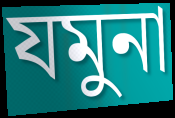
যমুনা